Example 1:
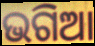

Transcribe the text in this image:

ଭଗିଆ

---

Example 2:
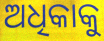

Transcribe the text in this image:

ଅଧିକାକୁ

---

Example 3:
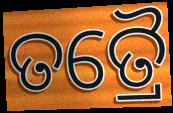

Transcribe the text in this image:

ତତ୍ରୈ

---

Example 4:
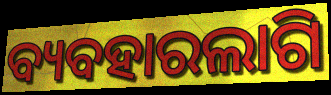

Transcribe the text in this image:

ବ୍ୟବହାରଲାଗି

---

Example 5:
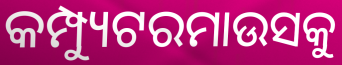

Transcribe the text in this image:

କମ୍ପ୍ୟୁଟରମାଉସକୁ